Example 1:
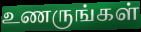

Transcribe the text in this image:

உணருங்கள்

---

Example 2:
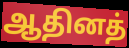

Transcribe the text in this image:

ஆதினத்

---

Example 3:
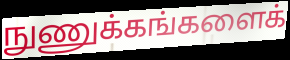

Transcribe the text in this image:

நுணுக்கங்களைக்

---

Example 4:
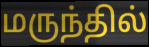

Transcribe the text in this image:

மருந்தில்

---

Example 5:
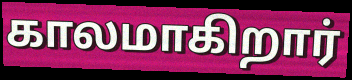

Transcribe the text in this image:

காலமாகிறார்